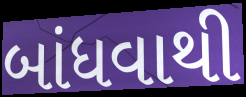
બાંધવાથી